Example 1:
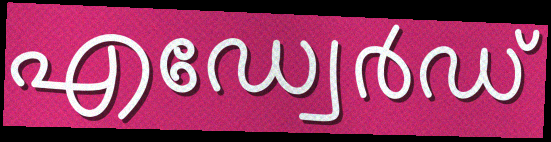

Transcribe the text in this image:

എഡ്വേർഡ്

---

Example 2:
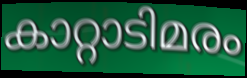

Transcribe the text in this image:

കാറ്റാടിമരം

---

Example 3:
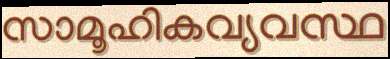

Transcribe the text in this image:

സാമൂഹികവ്യവസ്ഥ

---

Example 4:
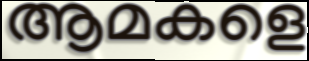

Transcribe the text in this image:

ആമകളെ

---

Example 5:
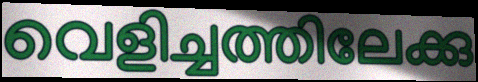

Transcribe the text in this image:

വെളിച്ചത്തിലേക്കു